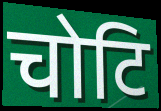
चोटि